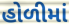
હોળીમાં